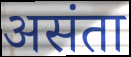
असंता